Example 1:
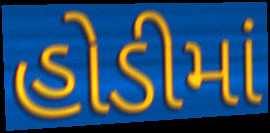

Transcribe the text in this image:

હોડીમાં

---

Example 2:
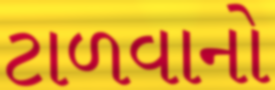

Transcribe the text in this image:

ટાળવાનો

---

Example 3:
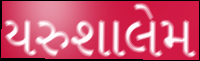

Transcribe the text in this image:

યરુશાલેમ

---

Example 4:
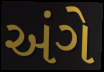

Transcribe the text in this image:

અંગે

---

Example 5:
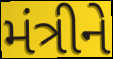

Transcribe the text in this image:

મંત્રીને